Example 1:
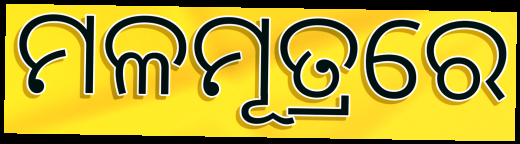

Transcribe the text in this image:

ମଳମୂତ୍ରରେ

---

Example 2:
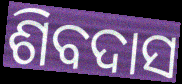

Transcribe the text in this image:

ଶିବଦାସ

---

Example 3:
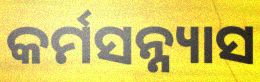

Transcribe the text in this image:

କର୍ମସନ୍ନ୍ୟାସ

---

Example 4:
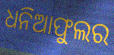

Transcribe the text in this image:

ଧନିଆଫୁଲର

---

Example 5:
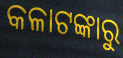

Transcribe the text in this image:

କଳାଟଙ୍କାରୁ